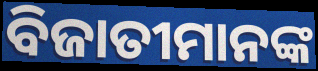
ବିଜାତୀମାନଙ୍କ